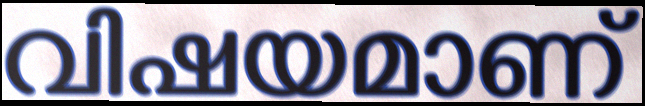
വിഷയമാണ്